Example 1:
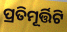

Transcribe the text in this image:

ପ୍ରତିମୂର୍ତ୍ତିଟି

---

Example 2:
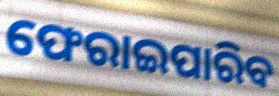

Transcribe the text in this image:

ଫେରାଇପାରିବ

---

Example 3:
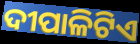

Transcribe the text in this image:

ଦୀପାଳିଟିଏ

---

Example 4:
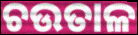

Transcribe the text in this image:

ଚଉତାଳ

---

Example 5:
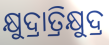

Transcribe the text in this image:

କ୍ଷୁଦ୍ରାତ୍ରିକ୍ଷୁଦ୍ର